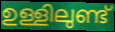
ഉള്ളിലുണ്ട്